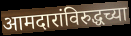
आमदारांविरुद्धच्या